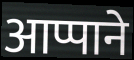
आप्पाने